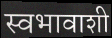
स्वभावाशी